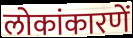
लोकांकारणें